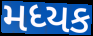
મધ્યક